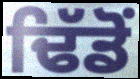
ਢਿੱਡੋਂ